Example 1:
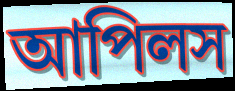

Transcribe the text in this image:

আপিলস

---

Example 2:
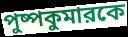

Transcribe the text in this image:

পুষ্পকুমারকে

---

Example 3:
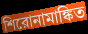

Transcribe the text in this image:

শিরোনামাঙ্কিত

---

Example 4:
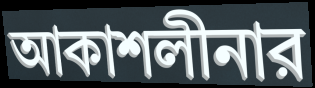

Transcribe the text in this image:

আকাশলীনার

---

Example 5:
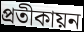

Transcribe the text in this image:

প্রতীকায়ন